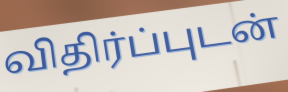
விதிர்ப்புடன்